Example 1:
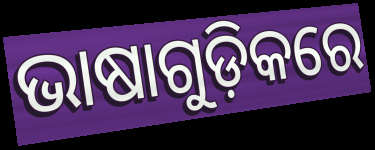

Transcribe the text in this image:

ଭାଷାଗୁଡ଼ିକରେ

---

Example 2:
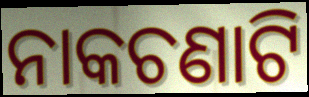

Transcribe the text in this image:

ନାକଚଣାଟି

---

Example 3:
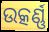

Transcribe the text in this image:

ଉତ୍କର୍ଣ୍ଣ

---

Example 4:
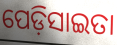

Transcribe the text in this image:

ପେଡ଼ିସାଇତା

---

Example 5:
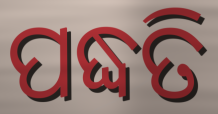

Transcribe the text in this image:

ପଦ୍ଧତି